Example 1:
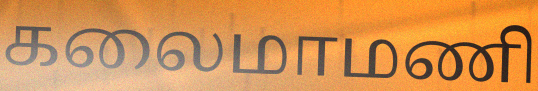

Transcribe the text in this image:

கலைமாமணி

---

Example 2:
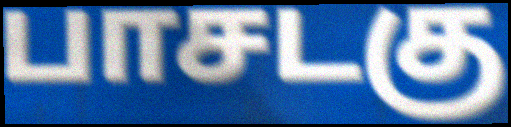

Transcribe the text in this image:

பாசடகு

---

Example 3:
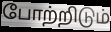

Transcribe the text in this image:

போற்றிடும்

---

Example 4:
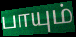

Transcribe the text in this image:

பாயும்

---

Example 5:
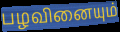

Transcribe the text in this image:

பழவினையும்